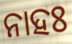
ନାହଃ